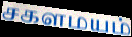
சகளமயம்